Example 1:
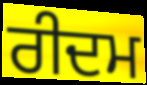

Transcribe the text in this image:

ਰੀਦਮ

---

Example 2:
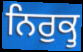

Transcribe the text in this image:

ਨਿਰੁਕ੍ਤ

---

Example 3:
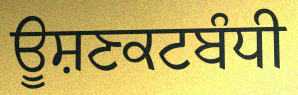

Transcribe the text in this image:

ਊਸ਼ਣਕਟਬੰਧੀ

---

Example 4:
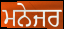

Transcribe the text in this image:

ਮਨੇਜਰ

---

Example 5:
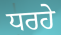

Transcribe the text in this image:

ਧਰਹੇ